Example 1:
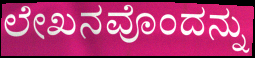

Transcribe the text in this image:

ಲೇಖನವೊಂದನ್ನು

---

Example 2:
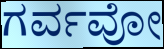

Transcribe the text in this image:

ಗರ್ವವೋ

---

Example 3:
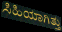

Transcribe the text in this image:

ಸಿಹಿಯಾಗಿತ್ತು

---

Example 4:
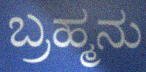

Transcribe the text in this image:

ಬ್ರಹ್ಮನು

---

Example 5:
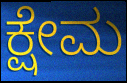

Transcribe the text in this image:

ಕ್ಷೇಮ